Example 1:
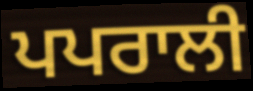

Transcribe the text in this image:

ਪਪਰਾਲੀ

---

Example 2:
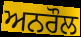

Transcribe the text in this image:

ਅਨਰੌਲ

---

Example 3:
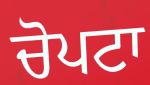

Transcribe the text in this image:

ਚੋਪਟਾ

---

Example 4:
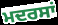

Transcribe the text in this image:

ਮਦਰਸਾਂ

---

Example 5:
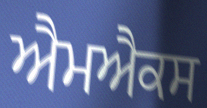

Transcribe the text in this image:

ਐਮਐਕਸ